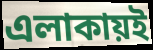
এলাকায়ই